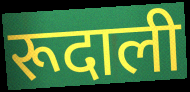
रूदाली